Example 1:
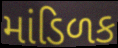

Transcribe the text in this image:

માંડિળક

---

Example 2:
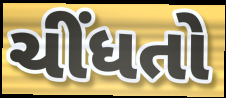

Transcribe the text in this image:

ચીંધતો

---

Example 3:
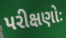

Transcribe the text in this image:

પરીક્ષણોઃ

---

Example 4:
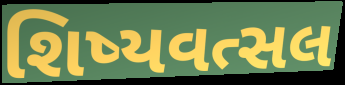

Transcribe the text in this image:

શિષ્યવત્સલ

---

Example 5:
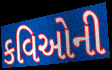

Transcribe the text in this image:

કવિઓની